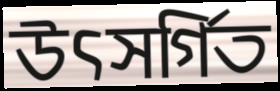
উৎসৰ্গিত